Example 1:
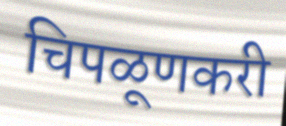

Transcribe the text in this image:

चिपळूणकरी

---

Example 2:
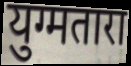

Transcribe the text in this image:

युग्मतारा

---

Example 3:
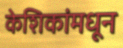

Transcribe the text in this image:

केशिकांमधून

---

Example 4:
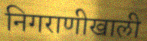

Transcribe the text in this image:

निगराणीखाली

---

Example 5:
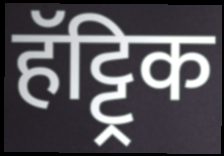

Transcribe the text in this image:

हॅट्ट्रिक